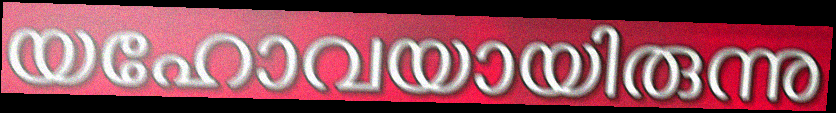
യഹോവയായിരുന്നു